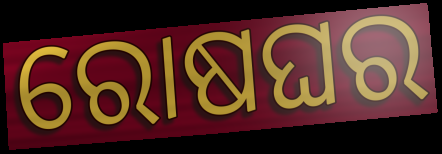
ରୋଷଘର